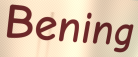
Bening